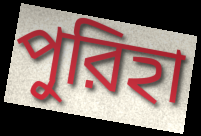
পুরিহা